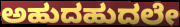
ಅಹುದಹುದಲೇ